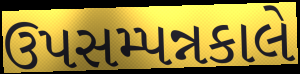
ઉપસમ્પન્નકાલે